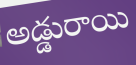
అడ్డురాయి